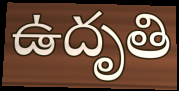
ఉదృతి